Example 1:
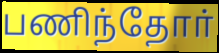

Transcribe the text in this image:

பணிந்தோர்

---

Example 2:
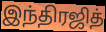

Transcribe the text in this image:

இந்திரஜித்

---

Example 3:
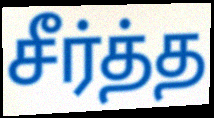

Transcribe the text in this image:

சீர்த்த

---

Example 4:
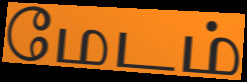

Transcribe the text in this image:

மேடம்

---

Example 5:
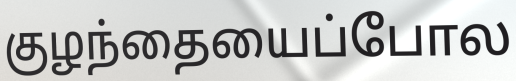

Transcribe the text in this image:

குழந்தையைப்போல